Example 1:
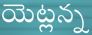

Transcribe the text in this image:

యెట్లన్న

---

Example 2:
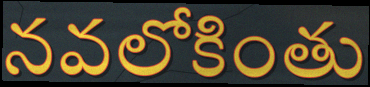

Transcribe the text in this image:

నవలోకింతు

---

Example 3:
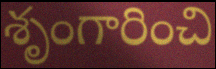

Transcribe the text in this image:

శృంగారించి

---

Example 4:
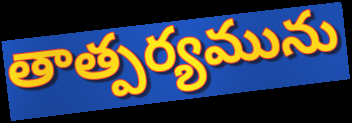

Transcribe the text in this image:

తాత్పర్యమును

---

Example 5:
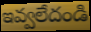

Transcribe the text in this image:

ఇవ్వలేదండి